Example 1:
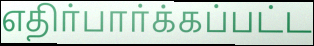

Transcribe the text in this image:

எதிர்பார்க்கப்பட்ட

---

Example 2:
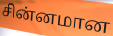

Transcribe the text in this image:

சின்னமான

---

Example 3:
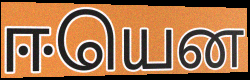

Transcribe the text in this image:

ஈயென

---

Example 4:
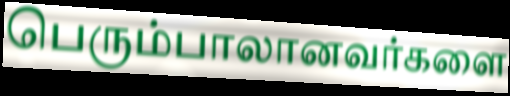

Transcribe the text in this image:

பெரும்பாலானவர்களை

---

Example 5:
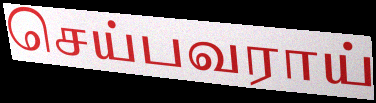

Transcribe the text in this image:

செய்பவராய்